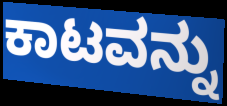
ಕಾಟವನ್ನು